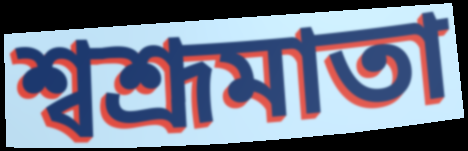
শ্বশ্রূমাতা